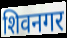
शिवनगर